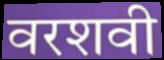
वरशवी